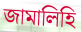
জামালিহি